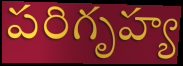
పరిగృహ్య